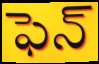
ఫెన్